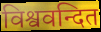
विश्ववन्दित